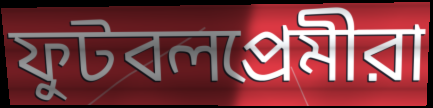
ফুটবলপ্রেমীরা